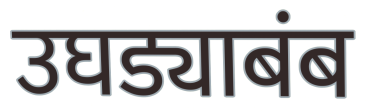
उघड्याबंब